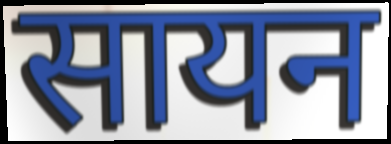
सायन